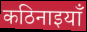
कठिनाइयाँ